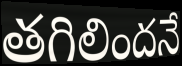
తగిలిందనే